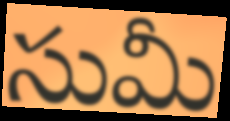
సుమీ